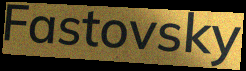
Fastovsky